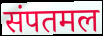
संपतमल